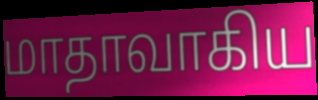
மாதாவாகிய